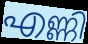
എണ്ണി